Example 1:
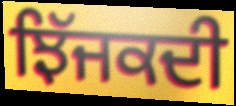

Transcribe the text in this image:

ਝਿੱਜਕਦੀ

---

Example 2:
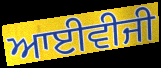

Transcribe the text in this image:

ਆਈਵੀਜੀ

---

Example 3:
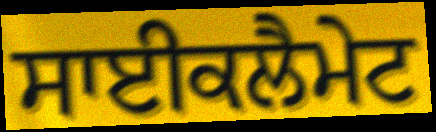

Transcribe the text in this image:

ਸਾਈਕਲੈਮੇਟ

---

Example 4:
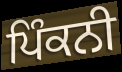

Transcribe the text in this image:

ਪਿੰਕਨੀ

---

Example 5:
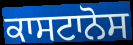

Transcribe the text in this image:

ਕਾਸਟਾਨੋਸ